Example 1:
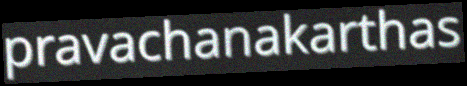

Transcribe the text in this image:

pravachanakarthas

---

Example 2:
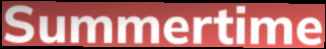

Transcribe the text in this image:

Summertime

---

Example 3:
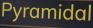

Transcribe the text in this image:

Pyramidal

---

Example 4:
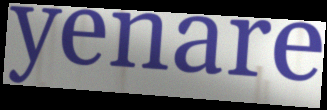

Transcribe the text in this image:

yenare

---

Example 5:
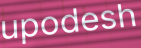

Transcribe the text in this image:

upodesh